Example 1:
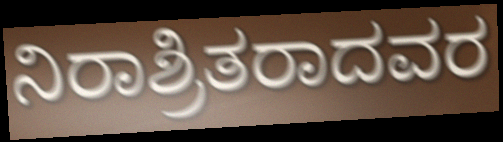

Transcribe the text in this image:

ನಿರಾಶ್ರಿತರಾದವರ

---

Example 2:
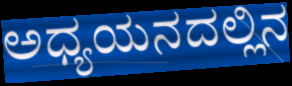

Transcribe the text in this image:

ಅಧ್ಯಯನದಲ್ಲಿನ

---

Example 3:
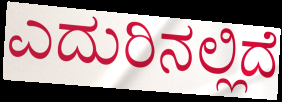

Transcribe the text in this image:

ಎದುರಿನಲ್ಲಿದೆ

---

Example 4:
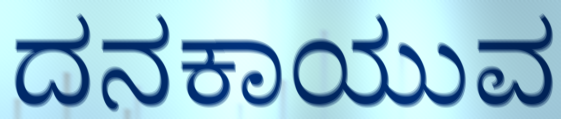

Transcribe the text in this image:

ದನಕಾಯುವ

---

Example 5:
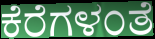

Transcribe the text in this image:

ಕೆರೆಗಳಂತೆ